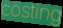
costing